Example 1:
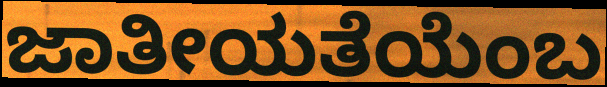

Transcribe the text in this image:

ಜಾತೀಯತೆಯೆಂಬ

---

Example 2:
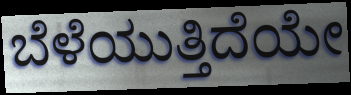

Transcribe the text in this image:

ಬೆಳೆಯುತ್ತಿದೆಯೇ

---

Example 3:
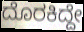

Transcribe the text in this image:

ದೊರಕಿದ್ದೇ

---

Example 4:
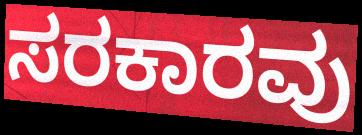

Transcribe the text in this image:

ಸರಕಾರವು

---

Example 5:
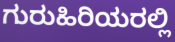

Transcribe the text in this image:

ಗುರುಹಿರಿಯರಲ್ಲಿ